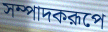
সম্পাদকরূপে